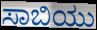
ಸಾಬಿಯು